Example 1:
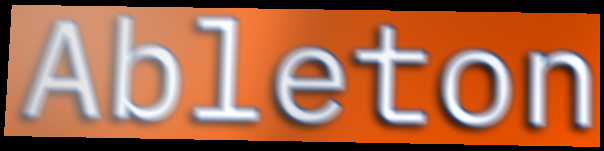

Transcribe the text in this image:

Ableton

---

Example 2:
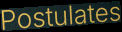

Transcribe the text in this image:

Postulates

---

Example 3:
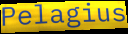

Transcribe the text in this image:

Pelagius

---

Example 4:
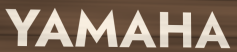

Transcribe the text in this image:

YAMAHA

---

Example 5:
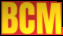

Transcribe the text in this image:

BCM